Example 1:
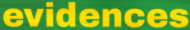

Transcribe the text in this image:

evidences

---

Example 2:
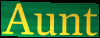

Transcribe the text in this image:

Aunt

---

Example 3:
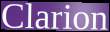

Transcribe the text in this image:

Clarion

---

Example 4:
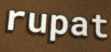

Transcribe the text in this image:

rupat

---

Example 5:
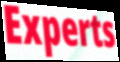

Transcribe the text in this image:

Experts